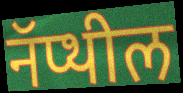
नॅप्थील